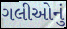
ગલીઓનું